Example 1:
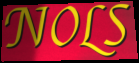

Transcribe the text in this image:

NOLS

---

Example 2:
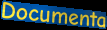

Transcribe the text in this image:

Documenta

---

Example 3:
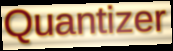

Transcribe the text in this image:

Quantizer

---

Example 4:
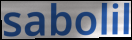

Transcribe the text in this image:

sabolil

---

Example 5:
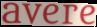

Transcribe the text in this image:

avere